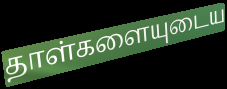
தாள்களையுடைய